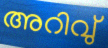
അറിവു്